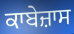
ਕਾਬੇਜ਼ਾਸ